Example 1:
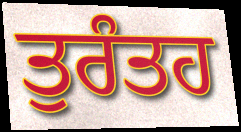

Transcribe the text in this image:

ਤੁਰੰਤਹ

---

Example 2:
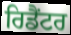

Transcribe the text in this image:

ਰਿਡੈਂਟਰ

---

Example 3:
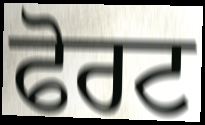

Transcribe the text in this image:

ਫੋਰਟ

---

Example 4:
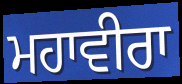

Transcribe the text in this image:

ਮਹਾਵੀਰਾ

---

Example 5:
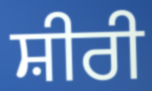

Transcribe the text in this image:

ਸ਼ੀਰੀ